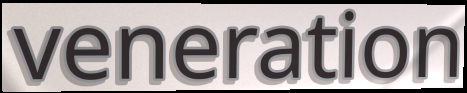
veneration